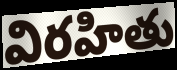
విరహితు